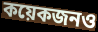
কয়েকজনও